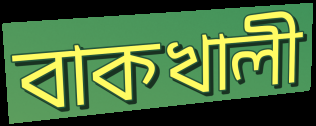
বাকখালী